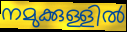
നമുക്കുള്ളിൽ